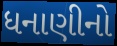
ધનાણીનો